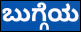
ಬುಗ್ಗೆಯ